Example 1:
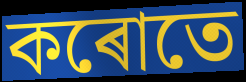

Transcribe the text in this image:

কৰোতে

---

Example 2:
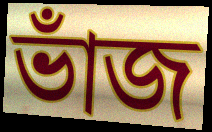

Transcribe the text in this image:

ভাঁজ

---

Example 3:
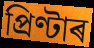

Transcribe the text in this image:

প্ৰিণ্টাৰ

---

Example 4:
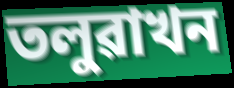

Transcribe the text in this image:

তলুৱাখন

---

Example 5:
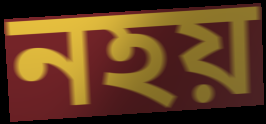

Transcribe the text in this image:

নহয়